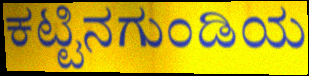
ಕಟ್ಟಿನಗುಂಡಿಯ